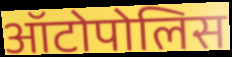
ऑटोपोलिस